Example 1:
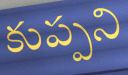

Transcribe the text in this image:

కుప్పని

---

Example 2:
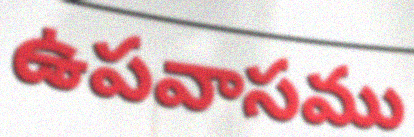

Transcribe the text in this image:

ఉపవాసము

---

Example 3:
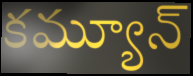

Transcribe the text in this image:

కమ్యూన్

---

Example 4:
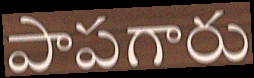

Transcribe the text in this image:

పాపగారు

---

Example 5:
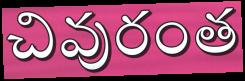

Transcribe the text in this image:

చివురంత